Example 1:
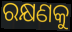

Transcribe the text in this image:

ରକ୍ଷଣକୁ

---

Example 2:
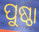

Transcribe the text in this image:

ପୁଷ୍ଠା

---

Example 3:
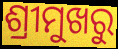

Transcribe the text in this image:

ଶ୍ରୀମୁଖରୁ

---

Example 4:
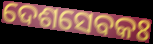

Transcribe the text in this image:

ଦେଶସେବକଃ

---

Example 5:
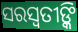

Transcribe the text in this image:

ସରସ୍ୱତୀଙ୍କି